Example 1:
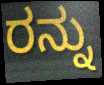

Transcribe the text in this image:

ರನ್ನು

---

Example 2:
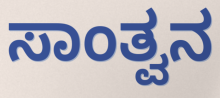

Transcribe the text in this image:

ಸಾಂತ್ವನ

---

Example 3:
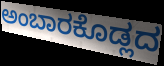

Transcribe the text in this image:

ಅಂಬಾರಕೊಡ್ಲದ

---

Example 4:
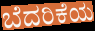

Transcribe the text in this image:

ಬೆದರಿಕೆಯ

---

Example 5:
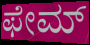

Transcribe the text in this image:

ಫೇಮ್